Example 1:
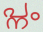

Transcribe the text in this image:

പ്നം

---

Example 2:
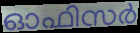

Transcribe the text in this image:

ഓഫിസർ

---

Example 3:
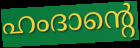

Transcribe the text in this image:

ഹംദാന്റെ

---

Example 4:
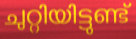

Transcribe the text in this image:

ചുറ്റിയിട്ടുണ്ട്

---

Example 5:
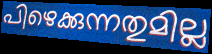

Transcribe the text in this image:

പിഴെക്കുന്നതുമില്ല